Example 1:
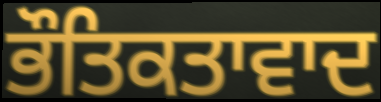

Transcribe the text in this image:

ਭੌਤਿਕਤਾਵਾਦ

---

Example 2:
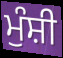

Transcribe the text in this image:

ਮੁੰਸ਼ੀ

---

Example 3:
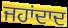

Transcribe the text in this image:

ਜਹਾਂਦਾਦ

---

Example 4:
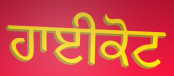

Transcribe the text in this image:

ਹਾਈਕੋਟ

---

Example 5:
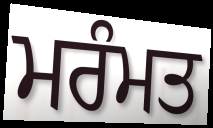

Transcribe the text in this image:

ਮਰੰਮਤ